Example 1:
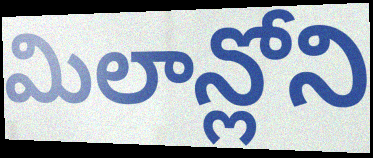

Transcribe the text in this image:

మిలాన్లోని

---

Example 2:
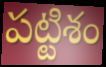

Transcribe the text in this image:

పట్టిశం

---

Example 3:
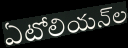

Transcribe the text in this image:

ఏటోలియన్‌ల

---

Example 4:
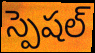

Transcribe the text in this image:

స్పెషల్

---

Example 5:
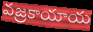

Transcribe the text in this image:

వజ్రకాయాయ